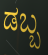
ಡಬ್ಬ